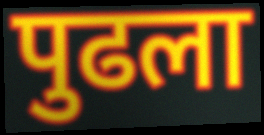
पुढला